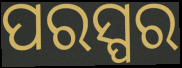
ପରସ୍ପର